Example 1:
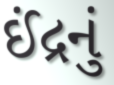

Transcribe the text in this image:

ઈંદ્રનું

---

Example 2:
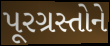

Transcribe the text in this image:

પૂરગ્રસ્તોને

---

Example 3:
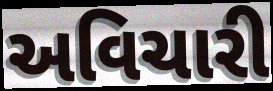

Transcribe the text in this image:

અવિચારી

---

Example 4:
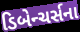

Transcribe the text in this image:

ડિબેન્ચર્સના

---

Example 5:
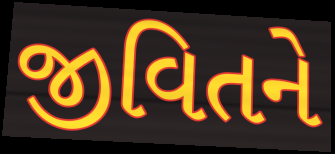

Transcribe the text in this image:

જીવિતને